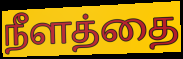
நீளத்தை